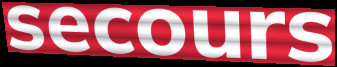
secours